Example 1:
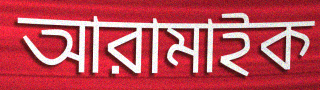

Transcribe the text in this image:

আরামাইক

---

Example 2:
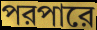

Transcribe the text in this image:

পরপারে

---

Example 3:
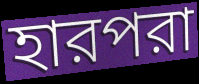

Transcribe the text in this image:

হারপরা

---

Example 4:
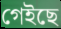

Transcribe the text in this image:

গেইছে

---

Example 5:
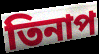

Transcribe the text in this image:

তিনাপ